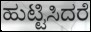
ಹುಟ್ಟಿಸಿದರೆ